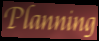
Planning